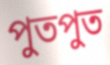
পুতপুত